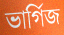
ভাৰ্গিজ